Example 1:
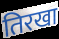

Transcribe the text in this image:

तिरखा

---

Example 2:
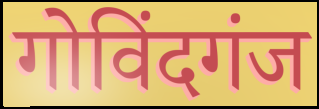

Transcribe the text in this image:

गोविंदगंज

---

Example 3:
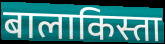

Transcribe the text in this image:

बालाकिस्ता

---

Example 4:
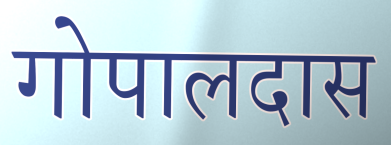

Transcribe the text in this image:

गोपालदास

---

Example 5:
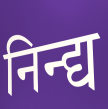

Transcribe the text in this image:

निन्द्य